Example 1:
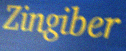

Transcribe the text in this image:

Zingiber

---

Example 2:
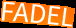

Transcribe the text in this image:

FADEL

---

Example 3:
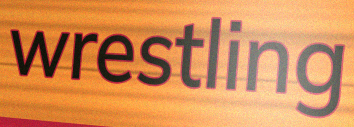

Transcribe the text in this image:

wrestling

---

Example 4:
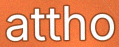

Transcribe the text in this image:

attho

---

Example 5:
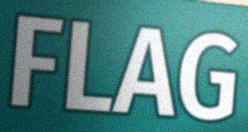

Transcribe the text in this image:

FLAG